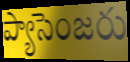
ప్యాసెంజరు